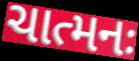
ચાત્મનઃ